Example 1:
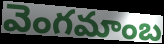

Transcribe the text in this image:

వెంగమాంబ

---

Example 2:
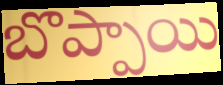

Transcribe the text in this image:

బొప్పాయి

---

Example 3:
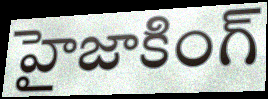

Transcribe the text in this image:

హైజాకింగ్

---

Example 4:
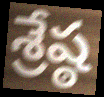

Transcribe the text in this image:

శ్రేష్ఠ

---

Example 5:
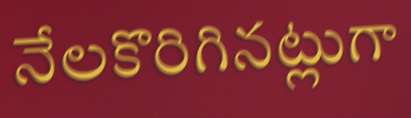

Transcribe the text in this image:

నేలకొరిగినట్లుగా